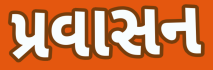
પ્રવાસન